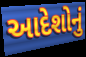
આદેશોનું